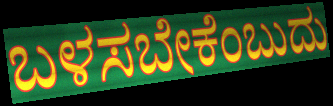
ಬಳಸಬೇಕೆಂಬುದು